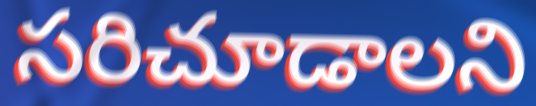
సరిచూడాలని